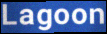
Lagoon